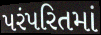
પરંપરિતમાં